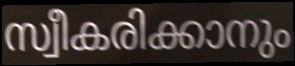
സ്വീകരിക്കാനും